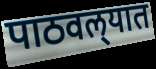
पाठवल्यात